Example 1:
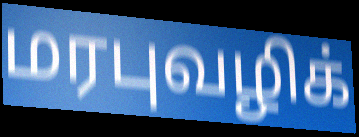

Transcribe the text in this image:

மரபுவழிக்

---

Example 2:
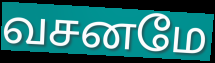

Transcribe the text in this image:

வசனமே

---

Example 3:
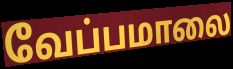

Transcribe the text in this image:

வேப்பமாலை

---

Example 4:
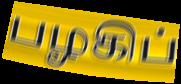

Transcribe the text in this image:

பழகிப்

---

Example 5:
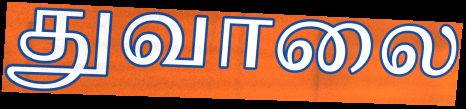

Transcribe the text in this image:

துவாலை